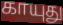
காயுது